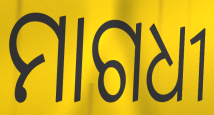
ମାଗଧୀ